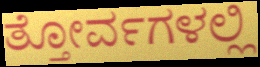
ತ್ತೋರ್ವಗಳಲ್ಲಿ